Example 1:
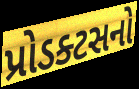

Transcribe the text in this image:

પ્રોડક્ટસનો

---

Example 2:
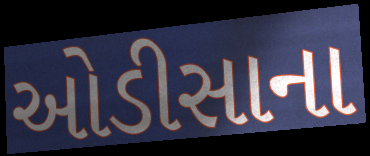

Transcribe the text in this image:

ઓડીસાના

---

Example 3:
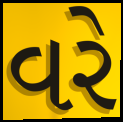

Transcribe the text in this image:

વરે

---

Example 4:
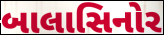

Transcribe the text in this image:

બાલાસિનોર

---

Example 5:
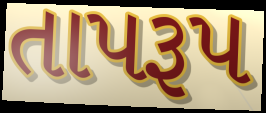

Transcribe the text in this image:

તાપરૂપ